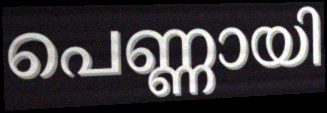
പെണ്ണായി